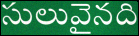
సులువైనది